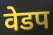
वेडप